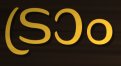
ട്രാം